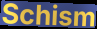
Schism